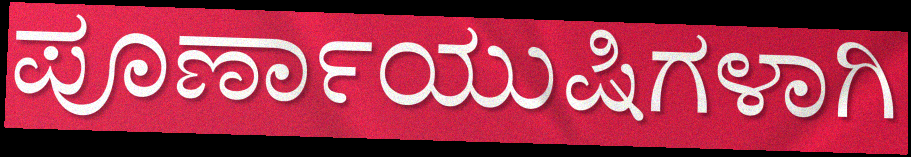
ಪೂರ್ಣಾಯುಷಿಗಳಾಗಿ